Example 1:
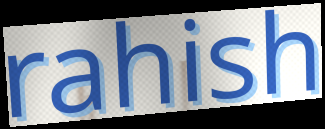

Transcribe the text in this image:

rahish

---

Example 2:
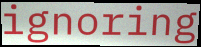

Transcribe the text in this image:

ignoring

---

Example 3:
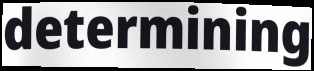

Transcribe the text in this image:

determining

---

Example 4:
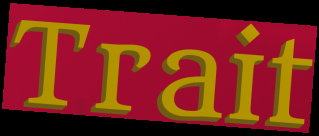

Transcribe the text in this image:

Trait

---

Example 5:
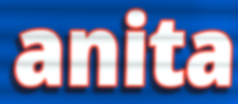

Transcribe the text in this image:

anita